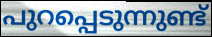
പുറപ്പെടുന്നുണ്ട്